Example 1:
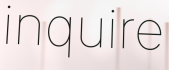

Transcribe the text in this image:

inquire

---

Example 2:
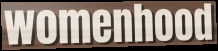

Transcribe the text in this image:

womenhood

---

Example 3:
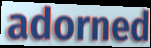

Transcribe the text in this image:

adorned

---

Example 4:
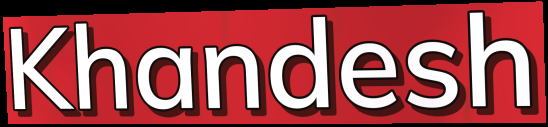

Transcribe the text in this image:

Khandesh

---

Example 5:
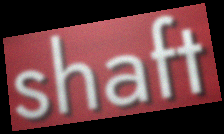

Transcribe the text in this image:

shaft